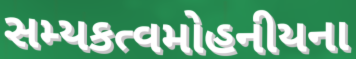
સમ્યકત્વમોહનીયના